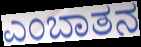
ಎಂಬಾತನ